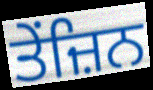
ਤੇਂਜ਼ਿਨ